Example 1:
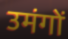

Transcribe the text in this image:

उमंगों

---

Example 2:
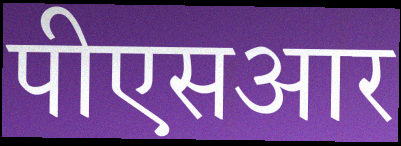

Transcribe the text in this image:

पीएसआर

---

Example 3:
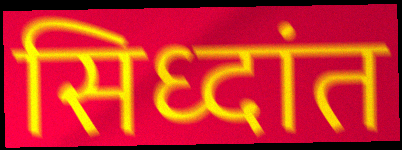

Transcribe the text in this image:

सिध्दांत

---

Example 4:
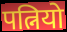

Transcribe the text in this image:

पत्नियो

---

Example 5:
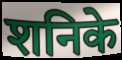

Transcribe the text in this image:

शनिके